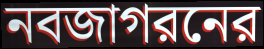
নবজাগরনের